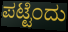
ಪಟ್ಟೆಂದು